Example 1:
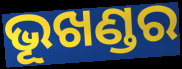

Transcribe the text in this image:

ଭୂଖଣ୍ଡର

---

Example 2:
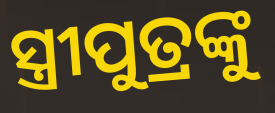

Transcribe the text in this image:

ସ୍ତ୍ରୀପୁତ୍ରଙ୍କୁ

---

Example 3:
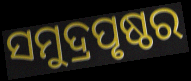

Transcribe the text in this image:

ସମୁଦ୍ରପୃଷ୍ଠର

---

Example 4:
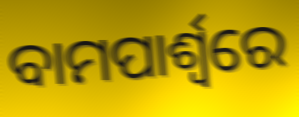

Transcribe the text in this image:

ବାମପାର୍ଶ୍ଵରେ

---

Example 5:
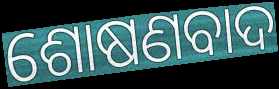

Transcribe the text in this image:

ଶୋଷଣବାଦ